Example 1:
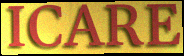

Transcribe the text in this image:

ICARE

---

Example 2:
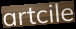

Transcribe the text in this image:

artcile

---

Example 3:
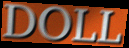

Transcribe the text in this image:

DOLL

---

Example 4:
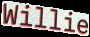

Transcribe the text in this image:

Willie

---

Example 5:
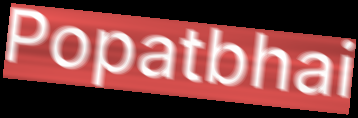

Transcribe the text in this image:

Popatbhai